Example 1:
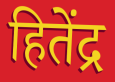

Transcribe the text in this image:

हितेंद्र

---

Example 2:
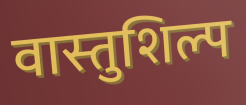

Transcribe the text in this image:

वास्तुशिल्प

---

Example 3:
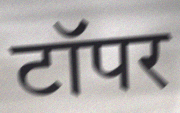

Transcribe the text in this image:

टॉपर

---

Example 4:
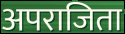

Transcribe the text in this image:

अपराजिता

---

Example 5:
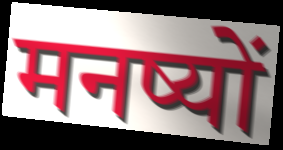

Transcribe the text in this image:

मनष्यों